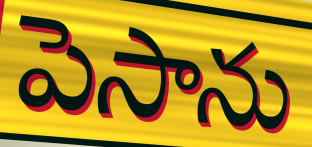
పెసాను